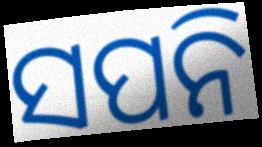
ସପନି